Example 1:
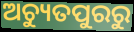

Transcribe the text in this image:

ଅଚ୍ୟୁତପୁରରୁ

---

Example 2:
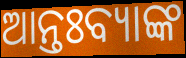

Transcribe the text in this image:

ଆନ୍ତଃବ୍ୟାଙ୍କ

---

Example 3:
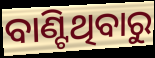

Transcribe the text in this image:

ବାଣ୍ଟିଥିବାରୁ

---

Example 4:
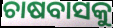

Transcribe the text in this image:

ଚାଷବାସକୁ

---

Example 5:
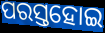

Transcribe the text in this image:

ପରସ୍ତହୋଇ